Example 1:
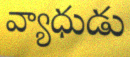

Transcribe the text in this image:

వ్యాధుడు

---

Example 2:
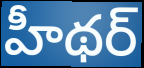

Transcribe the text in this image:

హీథర్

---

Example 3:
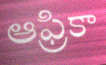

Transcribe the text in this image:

ఆఫ్రికా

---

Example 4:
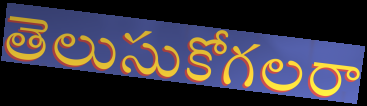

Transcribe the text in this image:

తెలుసుకోగలరా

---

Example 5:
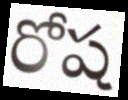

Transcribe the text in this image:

రోష